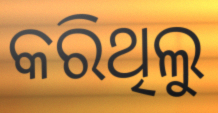
କରିଥିଲୁ